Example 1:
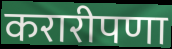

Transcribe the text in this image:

करारीपणा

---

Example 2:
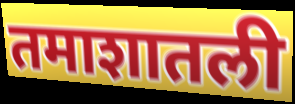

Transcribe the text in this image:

तमाशातली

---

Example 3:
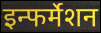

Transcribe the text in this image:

इन्फर्मेशन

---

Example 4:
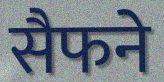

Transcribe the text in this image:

सैफने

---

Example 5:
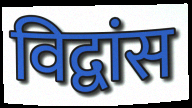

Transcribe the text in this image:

विद्वांस